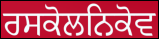
ਰਸਕੋਲਨਿਕੋਵ